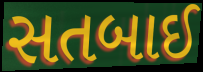
સતબાઈ